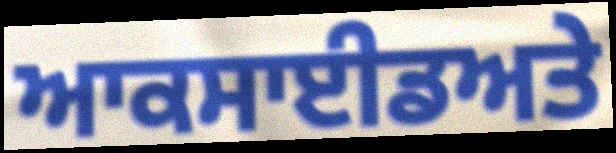
ਆਕਸਾਈਡਅਤੇ